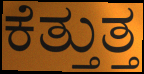
ಕೆತ್ತುತ್ತ